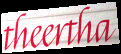
theertha